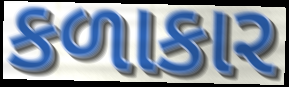
કળાકાર